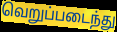
வெறுப்படைந்து